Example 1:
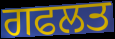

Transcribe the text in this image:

ਗਫਲਤ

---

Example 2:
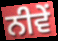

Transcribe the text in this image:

ਨੀਵੇਂ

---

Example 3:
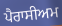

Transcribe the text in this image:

ਪੈਰਾਸੀਅਮ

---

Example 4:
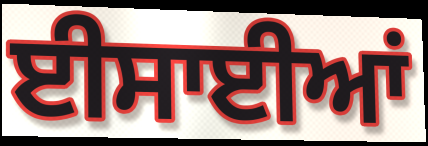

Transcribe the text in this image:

ਈਸਾਈਆਂ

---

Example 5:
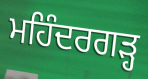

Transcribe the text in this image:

ਮਹਿੰਦਰਗੜ੍ਹ